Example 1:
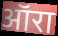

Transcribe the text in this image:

ऑरा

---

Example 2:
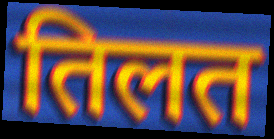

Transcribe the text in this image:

तिलत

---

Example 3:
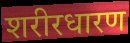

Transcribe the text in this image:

शरीरधारण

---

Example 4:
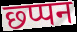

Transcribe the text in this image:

छ्प्पन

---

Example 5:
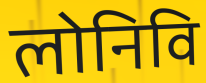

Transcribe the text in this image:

लोनिवि